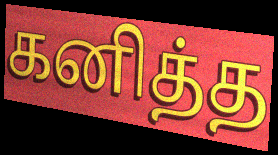
கனித்த